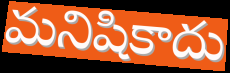
మనిషికాదు